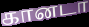
கானடா